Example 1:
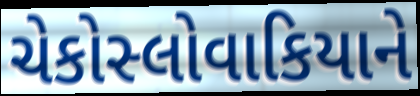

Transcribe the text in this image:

ચેકોસ્લોવાકિયાને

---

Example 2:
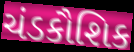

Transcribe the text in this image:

ચંડકૌશિક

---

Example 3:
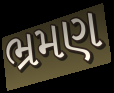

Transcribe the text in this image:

ભ્રમણ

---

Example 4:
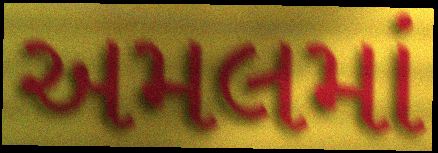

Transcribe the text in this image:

અમલમાં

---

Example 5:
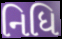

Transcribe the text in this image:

નિધિ